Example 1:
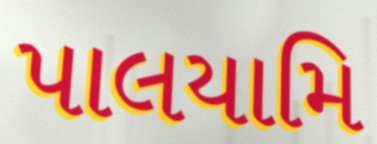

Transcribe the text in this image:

પાલયામિ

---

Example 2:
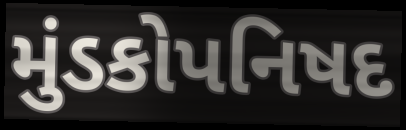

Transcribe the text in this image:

મુંડકોપનિષદ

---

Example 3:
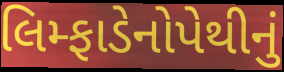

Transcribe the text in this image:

લિમ્ફાડેનોપેથીનું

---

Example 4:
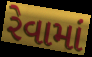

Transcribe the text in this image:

રેવામાં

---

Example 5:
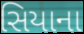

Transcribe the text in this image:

સિયાના